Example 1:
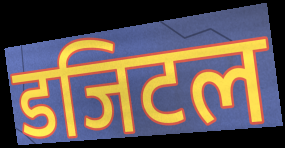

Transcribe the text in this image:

डजिटल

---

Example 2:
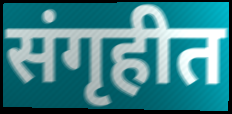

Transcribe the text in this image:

संगृहीत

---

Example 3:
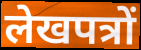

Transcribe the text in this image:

लेखपत्रों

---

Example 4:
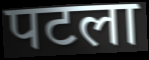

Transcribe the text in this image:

पटला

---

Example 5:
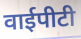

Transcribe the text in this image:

वाईपीटी